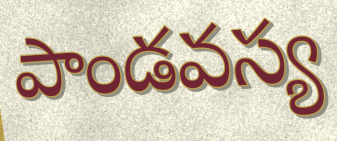
పాండవస్య